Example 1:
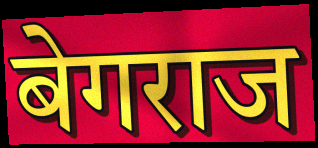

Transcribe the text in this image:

बेगराज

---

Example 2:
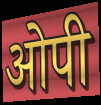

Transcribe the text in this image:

ओपी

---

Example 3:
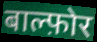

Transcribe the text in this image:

बाल्फ़ोर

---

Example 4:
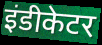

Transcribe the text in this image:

इंडीकेटर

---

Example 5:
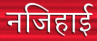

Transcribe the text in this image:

नजिहाई